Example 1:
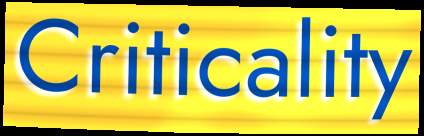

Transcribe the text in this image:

Criticality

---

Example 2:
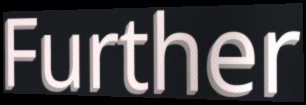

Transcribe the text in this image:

Further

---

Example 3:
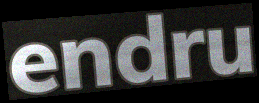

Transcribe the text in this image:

endru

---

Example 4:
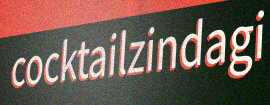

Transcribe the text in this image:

cocktailzindagi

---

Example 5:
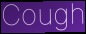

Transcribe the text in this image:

Cough